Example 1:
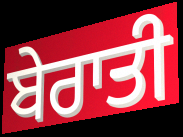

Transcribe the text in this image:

ਬੇਰਾਤੀ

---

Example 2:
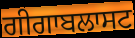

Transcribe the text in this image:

ਗੀਗਾਬਲਾਸਟ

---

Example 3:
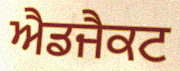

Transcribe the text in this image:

ਐਡਜੈਕਟ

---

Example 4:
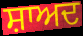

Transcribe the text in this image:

ਸ਼ਾਅਦ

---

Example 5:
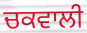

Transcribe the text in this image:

ਚਕਵਾਲੀ